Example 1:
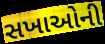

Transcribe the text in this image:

સખાઓની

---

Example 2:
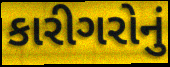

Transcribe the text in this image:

કારીગરોનું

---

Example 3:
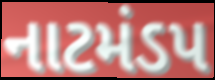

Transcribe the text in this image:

નાટમંડપ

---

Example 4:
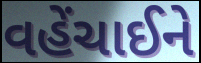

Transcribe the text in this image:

વહેંચાઈને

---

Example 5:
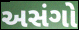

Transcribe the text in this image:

અસંગો